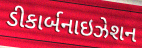
ડીકાર્બનાઇઝેશન